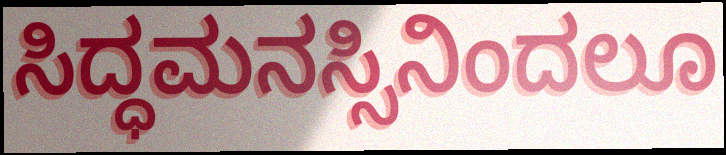
ಸಿದ್ಧಮನಸ್ಸಿನಿಂದಲೂ